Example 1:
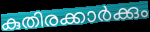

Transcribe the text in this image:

കുതിരക്കാർക്കും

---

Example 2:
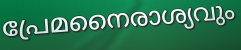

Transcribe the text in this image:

പ്രേമനൈരാശ്യവും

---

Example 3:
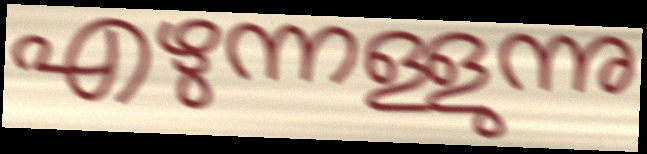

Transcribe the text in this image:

എഴുന്നള്ളുന്നു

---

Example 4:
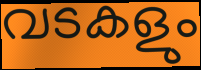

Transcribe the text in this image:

വടകളും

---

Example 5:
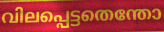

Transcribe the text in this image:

വിലപ്പെട്ടതെന്തോ